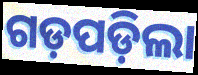
ଗଡ଼ପଡ଼ିଲା